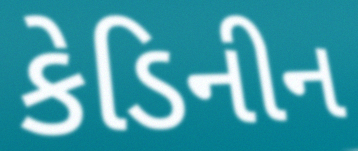
કેડિનીન